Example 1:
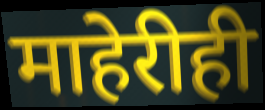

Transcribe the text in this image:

माहेरीही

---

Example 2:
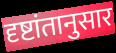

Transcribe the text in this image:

दृष्टांतानुसार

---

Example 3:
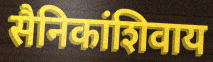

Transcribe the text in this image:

सैनिकांशिवाय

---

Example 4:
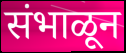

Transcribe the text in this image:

संभाळून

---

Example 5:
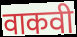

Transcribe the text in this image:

वाकवी